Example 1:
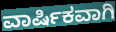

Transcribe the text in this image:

ವಾರ್ಷಿಕವಾಗಿ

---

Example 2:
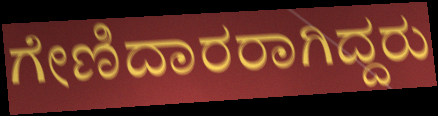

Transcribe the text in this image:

ಗೇಣಿದಾರರಾಗಿದ್ದರು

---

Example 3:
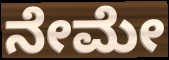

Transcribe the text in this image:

ನೇಮೇ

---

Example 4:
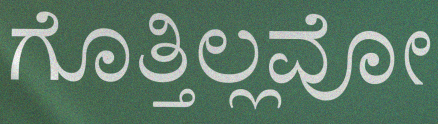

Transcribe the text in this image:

ಗೊತ್ತಿಲ್ಲವೋ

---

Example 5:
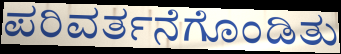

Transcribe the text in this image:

ಪರಿವರ್ತನೆಗೊಂಡಿತು